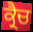
ਕ੍ਰੈਚ